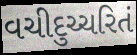
વચીદુચ્ચરિતં